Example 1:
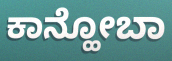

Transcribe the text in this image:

ಕಾನ್ಹೋಬಾ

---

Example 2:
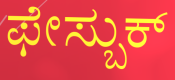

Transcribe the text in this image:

ಫೇಸ್ಬುಕ್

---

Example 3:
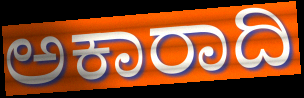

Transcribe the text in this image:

ಅಕಾರಾದಿ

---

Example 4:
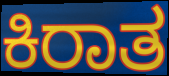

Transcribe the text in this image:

ಕಿರಾತ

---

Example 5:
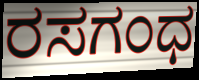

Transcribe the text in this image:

ರಸಗಂಧ